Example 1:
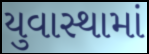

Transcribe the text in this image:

યુવાસ્થામાં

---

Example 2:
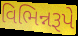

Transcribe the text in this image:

વિભિન્નરૂપે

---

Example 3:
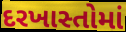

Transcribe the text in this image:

દરખાસ્તોમાં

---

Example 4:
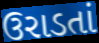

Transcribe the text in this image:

ઉરાડતાં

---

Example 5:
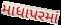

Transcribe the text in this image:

માધાપરમાં